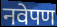
नवेपण